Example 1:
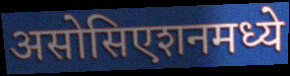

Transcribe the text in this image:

असोसिएशनमध्ये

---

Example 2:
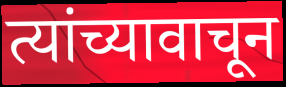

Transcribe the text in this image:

त्यांच्यावाचून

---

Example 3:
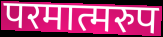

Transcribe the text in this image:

परमात्मरुप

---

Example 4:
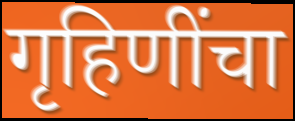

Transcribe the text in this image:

गृहिणींचा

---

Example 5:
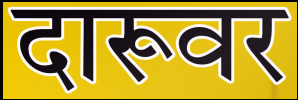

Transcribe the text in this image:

दारूवर